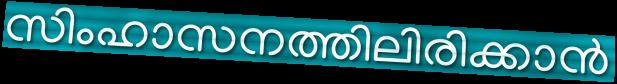
സിംഹാസനത്തിലിരിക്കാൻ